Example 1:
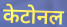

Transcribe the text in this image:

केटोनल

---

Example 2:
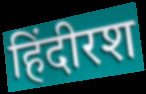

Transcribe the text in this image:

हिंदीरश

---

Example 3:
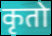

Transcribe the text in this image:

कृतो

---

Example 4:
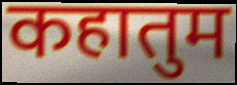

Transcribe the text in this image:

कहातुम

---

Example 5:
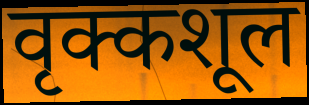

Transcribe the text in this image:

वृक्कशूल